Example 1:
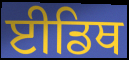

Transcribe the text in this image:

ਈਡਿਥ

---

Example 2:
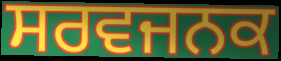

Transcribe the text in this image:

ਸਰਵਜਨਕ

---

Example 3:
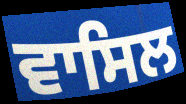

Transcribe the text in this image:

ਵਾਸਿਲ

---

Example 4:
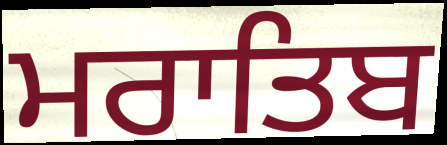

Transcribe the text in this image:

ਮਰਾਤਿਬ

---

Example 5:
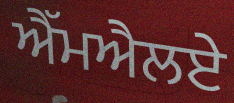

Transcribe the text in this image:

ਐੱਮਐਲਏ